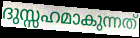
ദുസ്സഹമാകുന്നത്